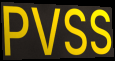
PVSS